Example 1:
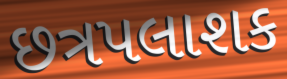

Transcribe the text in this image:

છત્રપલાશક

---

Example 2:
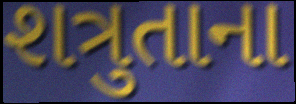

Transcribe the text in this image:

શત્રુતાના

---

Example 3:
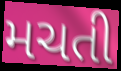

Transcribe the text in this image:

મચતી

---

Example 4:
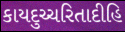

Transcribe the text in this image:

કાયદુચ્ચરિતાદીહિ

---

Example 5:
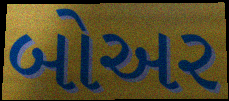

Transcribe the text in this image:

બોઅર